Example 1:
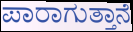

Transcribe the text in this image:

ಪಾರಾಗುತ್ತಾನೆ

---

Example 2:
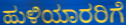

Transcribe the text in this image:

ಹುಳಿಯಾರರಿಗೆ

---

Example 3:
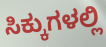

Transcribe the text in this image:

ಸಿಕ್ಕುಗಳಲ್ಲಿ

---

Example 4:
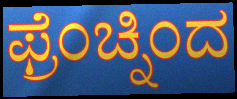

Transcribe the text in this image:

ಫ್ರೆಂಚ್ನಿಂದ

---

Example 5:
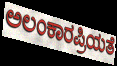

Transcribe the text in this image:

ಅಲಂಕಾರಪ್ರಿಯತೆ